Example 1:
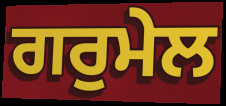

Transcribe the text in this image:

ਗਰੁਮੇਲ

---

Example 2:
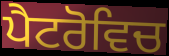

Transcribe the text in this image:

ਪੈਟਰੋਵਿਚ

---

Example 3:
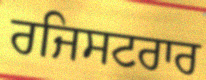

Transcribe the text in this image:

ਰਜਿਸਟਰਾਰ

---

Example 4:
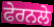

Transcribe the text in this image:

ਫੇਰਨਲੇ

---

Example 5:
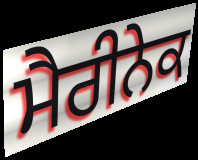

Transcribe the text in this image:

ਮੈਰੀਨੇਕ